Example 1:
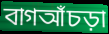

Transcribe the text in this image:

বাগআঁচড়া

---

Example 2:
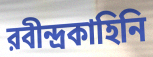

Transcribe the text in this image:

রবীন্দ্রকাহিনি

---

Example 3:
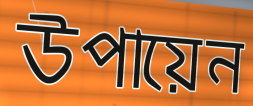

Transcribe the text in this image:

উপায়েন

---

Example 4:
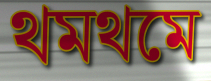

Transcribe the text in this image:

থমথমে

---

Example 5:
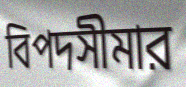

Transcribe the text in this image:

বিপদসীমার